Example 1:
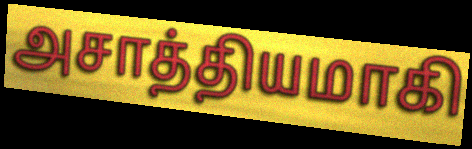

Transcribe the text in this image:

அசாத்தியமாகி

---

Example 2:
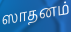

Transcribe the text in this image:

ஸாதனம்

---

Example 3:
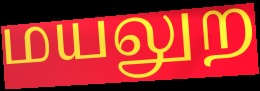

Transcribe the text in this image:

மயலுற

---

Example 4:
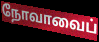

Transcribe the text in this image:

நோவாவைப்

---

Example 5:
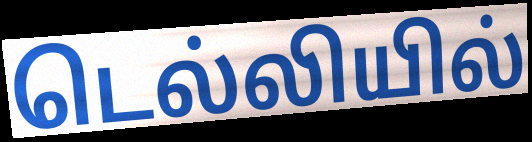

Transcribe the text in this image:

டெல்லியில்